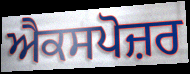
ਐਕਸਪੋਜ਼ਰ